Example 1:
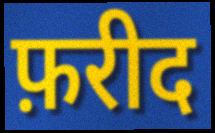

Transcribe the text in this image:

फ़रीद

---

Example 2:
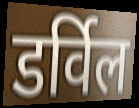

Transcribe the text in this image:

डर्विल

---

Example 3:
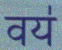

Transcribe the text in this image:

वय॑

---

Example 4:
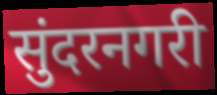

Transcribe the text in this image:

सुंदरनगरी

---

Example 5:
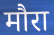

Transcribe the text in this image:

मौरा